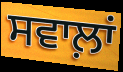
ਸਵਾਲ਼ਾਂ